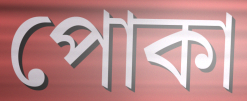
পোকা